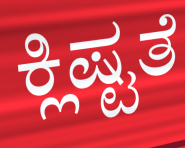
ಕ್ಲಿಷ್ಟತೆ